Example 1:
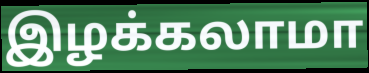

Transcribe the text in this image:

இழக்கலாமா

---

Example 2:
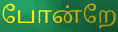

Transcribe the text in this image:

போன்றே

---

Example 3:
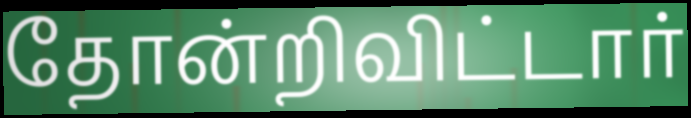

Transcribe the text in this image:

தோன்றிவிட்டார்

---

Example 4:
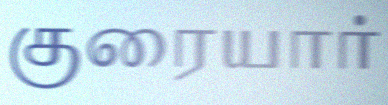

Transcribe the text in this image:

குரையார்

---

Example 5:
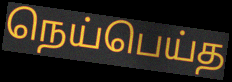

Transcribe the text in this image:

நெய்பெய்த